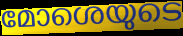
മോശെയുടെ